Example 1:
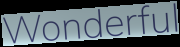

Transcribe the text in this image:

Wonderful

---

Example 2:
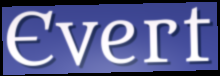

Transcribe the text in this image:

Evert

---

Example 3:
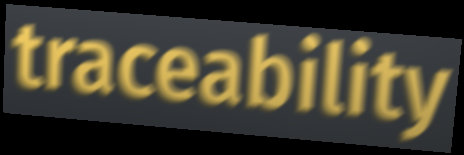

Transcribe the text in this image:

traceability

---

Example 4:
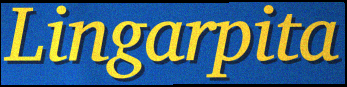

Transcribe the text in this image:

Lingarpita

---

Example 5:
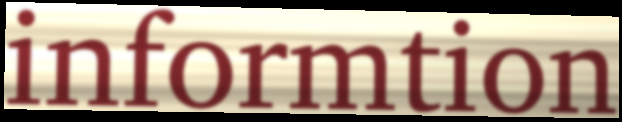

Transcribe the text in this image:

informtion